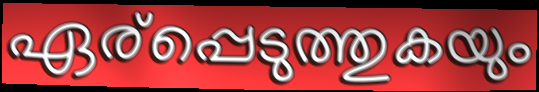
ഏര്പ്പെടുത്തുകയും